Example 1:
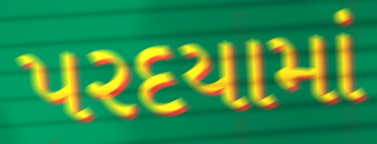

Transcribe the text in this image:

પરદયામાં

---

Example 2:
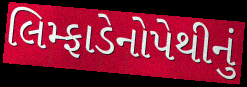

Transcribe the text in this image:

લિમ્ફાડેનોપેથીનું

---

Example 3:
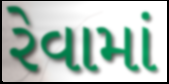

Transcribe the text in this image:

રેવામાં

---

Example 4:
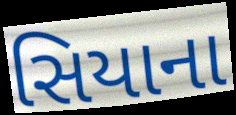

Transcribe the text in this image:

સિયાના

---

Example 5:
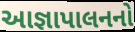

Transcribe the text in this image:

આજ્ઞાપાલનનો